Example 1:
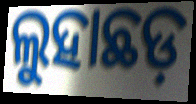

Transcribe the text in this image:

ଲୁହାଛଡ଼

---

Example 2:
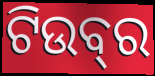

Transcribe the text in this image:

ଟିଉବ୍‍ର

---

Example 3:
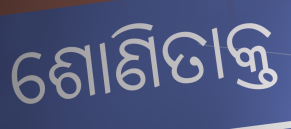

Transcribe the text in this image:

ଶୋଣିତାକ୍ତ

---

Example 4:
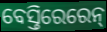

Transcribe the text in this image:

ବେସ୍ତିରେରେନ୍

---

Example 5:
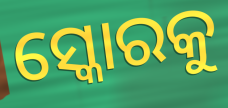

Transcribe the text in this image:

ସ୍କୋରକୁ